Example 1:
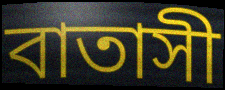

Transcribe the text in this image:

বাতাসী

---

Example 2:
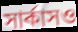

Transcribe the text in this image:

সার্কাসও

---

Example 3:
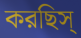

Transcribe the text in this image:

করছিস্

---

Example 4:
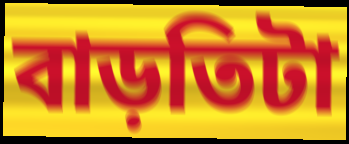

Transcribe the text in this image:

বাড়তিটা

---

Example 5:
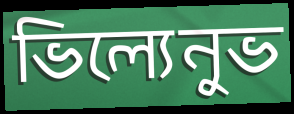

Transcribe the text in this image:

ভিল্যেনুভ